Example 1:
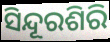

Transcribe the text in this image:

ସିନ୍ଦୂରଶିରି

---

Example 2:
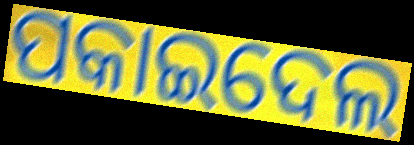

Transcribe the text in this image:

ପକାଇଦେଲ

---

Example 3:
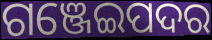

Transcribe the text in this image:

ଗଞ୍ଜେଇପଦର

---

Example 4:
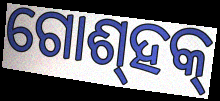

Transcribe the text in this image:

ଗୋଶ୍‍ହକ୍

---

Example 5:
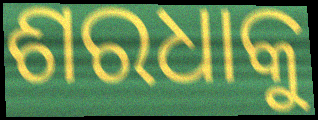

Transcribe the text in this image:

ଶରଧାକୁ